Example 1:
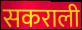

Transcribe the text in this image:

सकराली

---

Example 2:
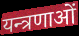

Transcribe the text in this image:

यन्त्रणाओं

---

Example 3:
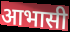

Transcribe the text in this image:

आभासी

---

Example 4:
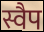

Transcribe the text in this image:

स्वैप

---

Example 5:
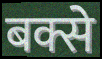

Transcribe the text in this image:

बक्से